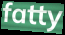
fatty